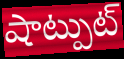
షాట్పుట్